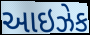
આઇઝેક